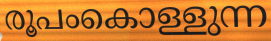
രൂപംകൊള്ളുന്ന